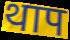
थाप